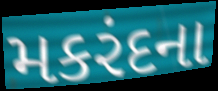
મકરંદના